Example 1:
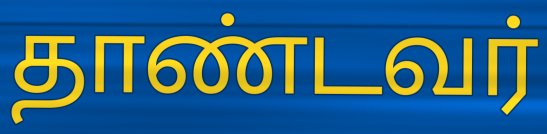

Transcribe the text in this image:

தாண்டவர்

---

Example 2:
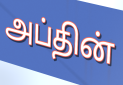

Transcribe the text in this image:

அப்தின்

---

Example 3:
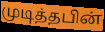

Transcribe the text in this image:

முடித்தபின்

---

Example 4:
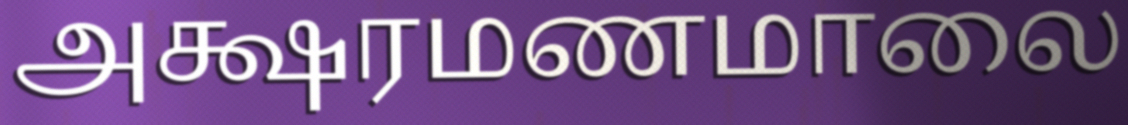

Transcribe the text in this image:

அக்ஷரமணமாலை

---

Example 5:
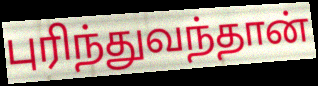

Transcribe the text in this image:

புரிந்துவந்தான்